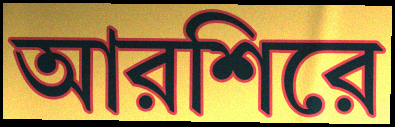
আরশিরে